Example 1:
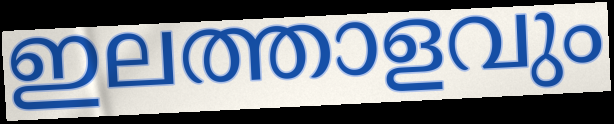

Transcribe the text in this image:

ഇലത്താളവും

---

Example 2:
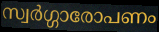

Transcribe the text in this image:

സ്വർഗ്ഗാരോപണം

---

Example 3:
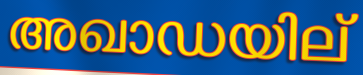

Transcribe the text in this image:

അഖാഡയില്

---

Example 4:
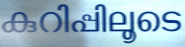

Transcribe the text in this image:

കുറിപ്പിലൂടെ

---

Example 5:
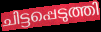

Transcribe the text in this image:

ചിട്ടപ്പെടുത്തി